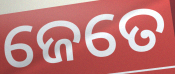
ଜେତେ